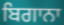
ਬਿਗਾਨਾ